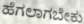
ಹೆಗಲಾಗಬೇಕು